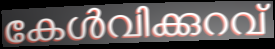
കേൾവിക്കുറവ്